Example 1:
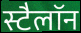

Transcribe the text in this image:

स्टैलॉन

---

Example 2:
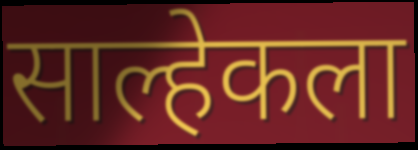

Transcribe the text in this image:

साल्हेकला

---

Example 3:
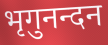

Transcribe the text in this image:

भृगुनन्दन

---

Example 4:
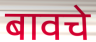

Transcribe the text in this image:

बावचे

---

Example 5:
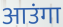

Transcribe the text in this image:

आउंगा